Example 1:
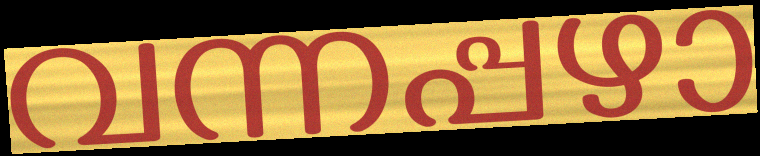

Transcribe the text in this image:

വന്നപ്പഴാ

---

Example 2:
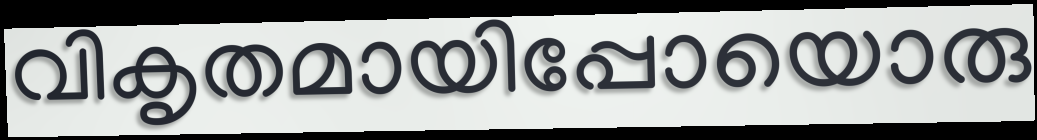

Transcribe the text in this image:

വികൃതമായിപ്പോയൊരു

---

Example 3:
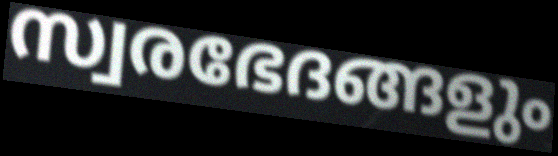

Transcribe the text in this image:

സ്വരഭേദങ്ങളും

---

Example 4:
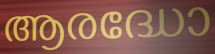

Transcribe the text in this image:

ആരദ്ധോ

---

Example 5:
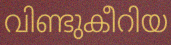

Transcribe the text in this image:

വിണ്ടുകീറിയ